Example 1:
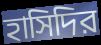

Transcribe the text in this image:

হাসিদির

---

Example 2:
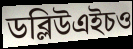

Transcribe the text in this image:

ডব্লিউএইচও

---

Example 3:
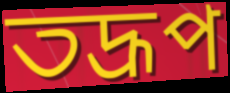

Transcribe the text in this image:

তদ্রূপ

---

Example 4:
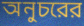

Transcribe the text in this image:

অনুচরের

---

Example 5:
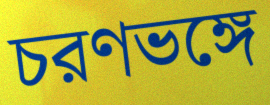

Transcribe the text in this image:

চরণভঙ্গে